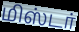
மிஸ்டர்